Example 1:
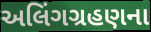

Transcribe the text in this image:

અલિંગગ્રહણના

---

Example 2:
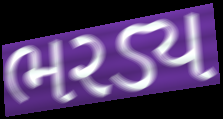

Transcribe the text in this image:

ભરડ્ય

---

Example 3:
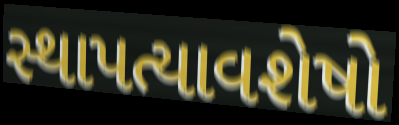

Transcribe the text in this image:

સ્થાપત્યાવશેષો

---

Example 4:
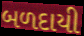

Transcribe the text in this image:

બળદાયી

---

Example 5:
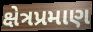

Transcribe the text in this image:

ક્ષેત્રપ્રમાણ